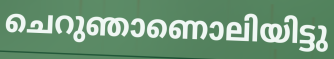
ചെറുഞാണൊലിയിട്ടു